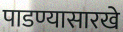
पाडण्यासारखे